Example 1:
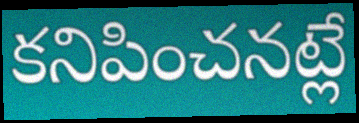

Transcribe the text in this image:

కనిపించనట్లే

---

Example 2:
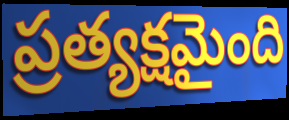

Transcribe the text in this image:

ప్రత్యక్షమైంది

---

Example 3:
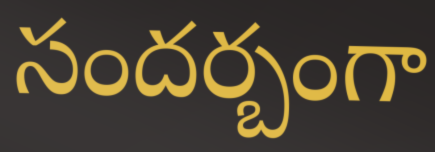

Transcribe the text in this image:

సందర్బంగా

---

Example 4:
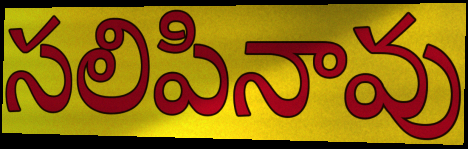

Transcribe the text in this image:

సలిపినావు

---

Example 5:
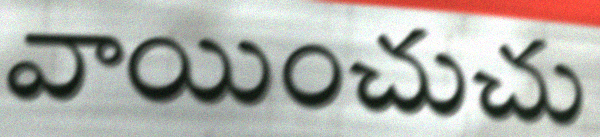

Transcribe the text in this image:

వాయించుచు